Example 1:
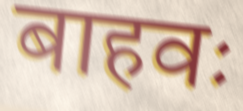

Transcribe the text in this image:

बाहवः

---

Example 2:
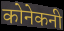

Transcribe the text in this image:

कोनेकनी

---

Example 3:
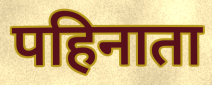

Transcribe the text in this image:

पहिनाता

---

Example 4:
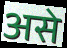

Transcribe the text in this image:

असे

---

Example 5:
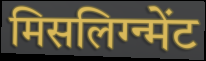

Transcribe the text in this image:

मिसलिग्न्मेंट